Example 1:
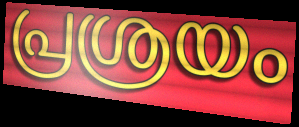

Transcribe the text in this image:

പ്രശ്രയം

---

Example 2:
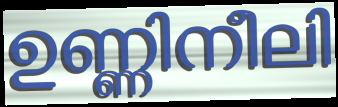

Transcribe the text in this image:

ഉണ്ണിനീലി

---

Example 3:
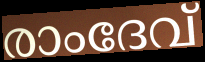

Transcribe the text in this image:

രാംദേവ്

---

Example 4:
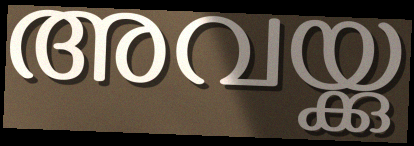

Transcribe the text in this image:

അവയ്ക്കു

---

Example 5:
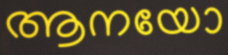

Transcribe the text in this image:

ആനയോ